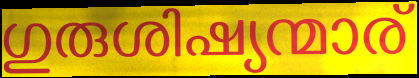
ഗുരുശിഷ്യന്മാര്